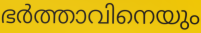
ഭർത്താവിനെയും